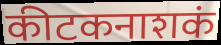
कीटकनाशकं